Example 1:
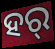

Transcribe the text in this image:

ହର୍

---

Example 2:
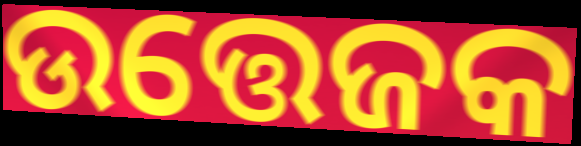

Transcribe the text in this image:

ଉତ୍ତେଜକ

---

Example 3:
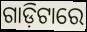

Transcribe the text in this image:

ଗାଡ଼ିଟାରେ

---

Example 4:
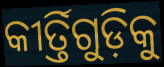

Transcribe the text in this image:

କୀର୍ତ୍ତିଗୁଡ଼ିକୁ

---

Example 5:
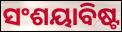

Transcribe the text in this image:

ସଂଶୟାବିଷ୍ଟ